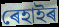
ৰেহাইৰ